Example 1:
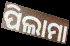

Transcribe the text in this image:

ପିଲାମା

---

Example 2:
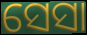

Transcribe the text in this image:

ସେସା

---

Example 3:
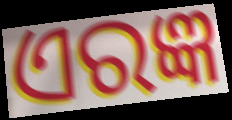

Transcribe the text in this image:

ଏରଜ୍ଞ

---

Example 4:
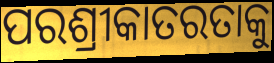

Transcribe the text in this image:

ପରଶ୍ରୀକାତରତାକୁ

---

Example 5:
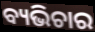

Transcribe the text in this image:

ବ୍ୟଭିଚାର